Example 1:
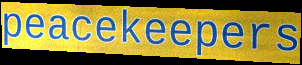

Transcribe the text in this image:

peacekeepers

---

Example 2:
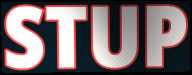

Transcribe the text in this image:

STUP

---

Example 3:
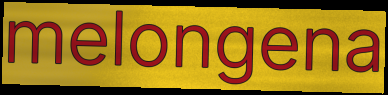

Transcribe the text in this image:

melongena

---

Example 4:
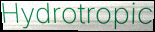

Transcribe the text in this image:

Hydrotropic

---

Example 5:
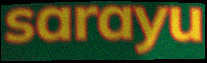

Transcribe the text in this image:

sarayu